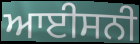
ਆਈਸਨੀ